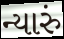
ન્યારું